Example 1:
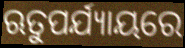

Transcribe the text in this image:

ଋତୁପର୍ଯ୍ୟାୟରେ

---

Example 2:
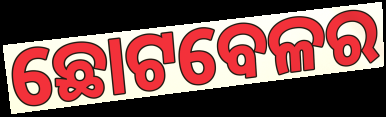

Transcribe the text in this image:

ଛୋଟବେଳର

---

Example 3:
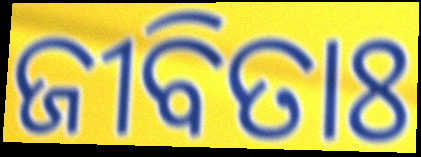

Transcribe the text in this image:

ଜୀବିତାଃ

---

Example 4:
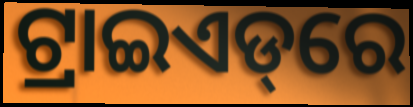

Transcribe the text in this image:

ଟ୍ରାଇଏଡ୍‌ରେ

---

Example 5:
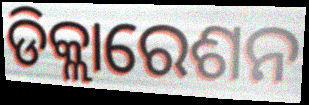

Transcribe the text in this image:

ଡିକ୍ଲାରେଶନ